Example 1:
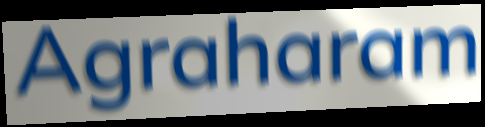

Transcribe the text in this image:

Agraharam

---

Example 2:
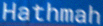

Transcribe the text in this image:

Hathmah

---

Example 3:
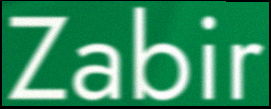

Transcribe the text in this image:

Zabir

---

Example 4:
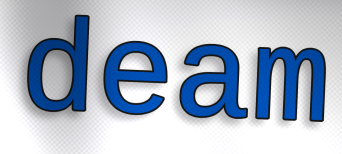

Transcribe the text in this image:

deam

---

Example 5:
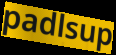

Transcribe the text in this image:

padlsup